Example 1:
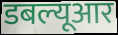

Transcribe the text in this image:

डबल्यूआर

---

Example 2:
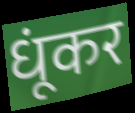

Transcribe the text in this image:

धूंकर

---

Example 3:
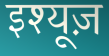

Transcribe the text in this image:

इश्यूज़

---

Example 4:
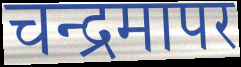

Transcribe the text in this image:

चन्द्रमापर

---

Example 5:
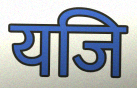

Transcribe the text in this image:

यजि